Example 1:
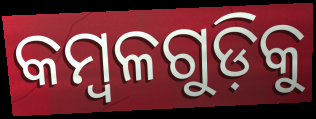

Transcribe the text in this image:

କମ୍ବଳଗୁଡ଼ିକୁ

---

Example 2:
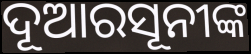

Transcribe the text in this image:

ଦୂଆରସୂନୀଙ୍କ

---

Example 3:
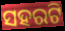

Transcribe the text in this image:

ସହରଟି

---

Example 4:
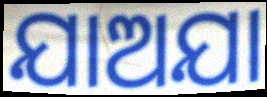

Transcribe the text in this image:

ଯାଅଯା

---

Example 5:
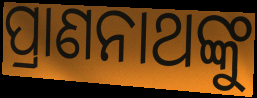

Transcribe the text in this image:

ପ୍ରାଣନାଥଙ୍କୁ